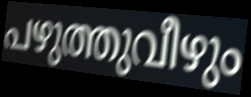
പഴുത്തുവീഴും